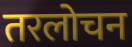
तरलोचन